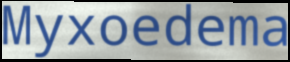
Myxoedema